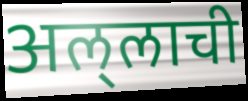
अल्लाची